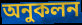
অনুকলন